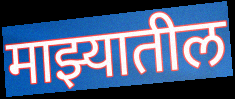
माझ्यातील